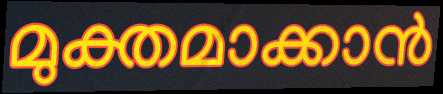
മുക്തമാക്കാൻ